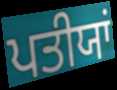
ਪਤੀਯਾਂ